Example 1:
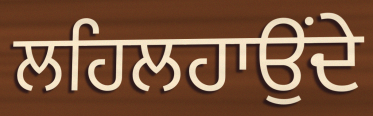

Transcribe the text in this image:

ਲਹਿਲਹਾਉਂਦੇ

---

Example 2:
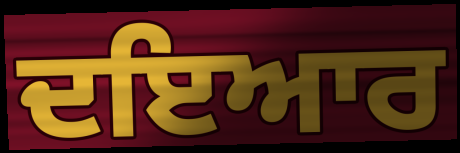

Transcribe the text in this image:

ਦਇਆਰ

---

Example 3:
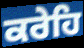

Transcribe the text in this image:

ਕਰੇਹਿ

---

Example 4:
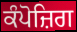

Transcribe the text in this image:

ਕੰਪੋਜ਼ਿਗ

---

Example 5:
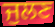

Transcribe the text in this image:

ਜੁਲਣ